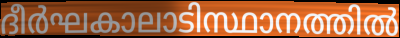
ദീർഘകാലാടിസ്ഥാനത്തിൽ